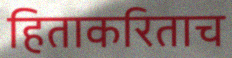
हिताकरिताच